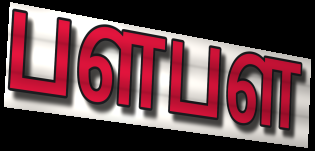
பளபள